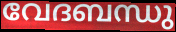
വേദബന്ധു